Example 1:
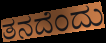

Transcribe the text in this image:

ತನದೆಂದು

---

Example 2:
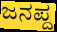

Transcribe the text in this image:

ಜನಪ್ದ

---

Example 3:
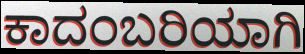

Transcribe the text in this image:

ಕಾದಂಬರಿಯಾಗಿ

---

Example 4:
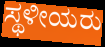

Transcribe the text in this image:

ಸ್ಥಳೀಯರು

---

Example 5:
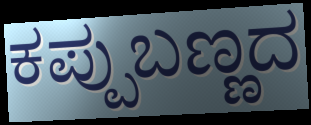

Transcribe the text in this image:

ಕಪ್ಪುಬಣ್ಣದ